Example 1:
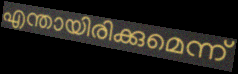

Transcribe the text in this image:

എന്തായിരിക്കുമെന്ന്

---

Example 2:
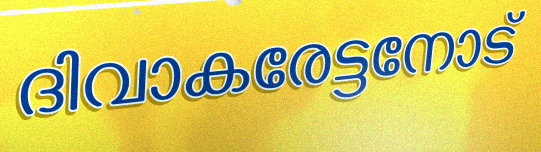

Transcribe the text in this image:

ദിവാകരേട്ടനോട്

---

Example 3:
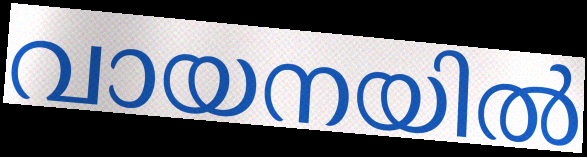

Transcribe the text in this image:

വായനയിൽ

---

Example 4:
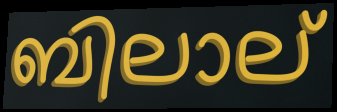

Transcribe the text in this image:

ബിലാല്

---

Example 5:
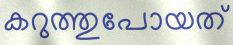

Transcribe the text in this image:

കറുത്തുപോയത്